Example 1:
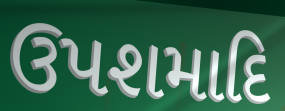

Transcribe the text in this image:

ઉપશમાદિ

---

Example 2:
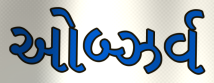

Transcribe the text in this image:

ઓબ્ઝર્વ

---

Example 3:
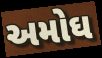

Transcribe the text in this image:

અમોઘ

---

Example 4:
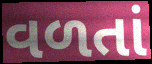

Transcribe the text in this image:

વળતાં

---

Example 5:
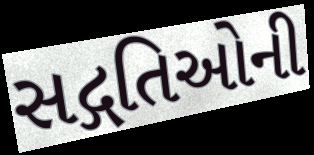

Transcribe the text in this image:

સદ્ગતિઓની